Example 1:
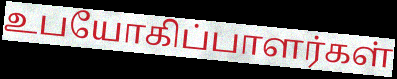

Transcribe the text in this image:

உபயோகிப்பாளர்கள்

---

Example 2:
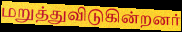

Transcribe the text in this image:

மறுத்துவிடுகின்றனர்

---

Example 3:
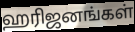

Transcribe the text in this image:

ஹரிஜனங்கள்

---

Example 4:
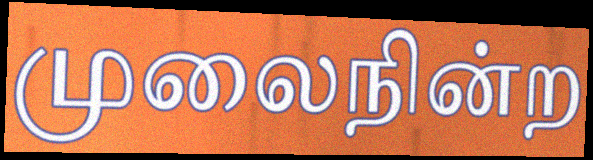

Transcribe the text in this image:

முலைநின்ற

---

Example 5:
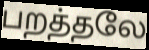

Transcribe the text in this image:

பறத்தலே